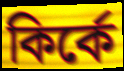
কির্কে